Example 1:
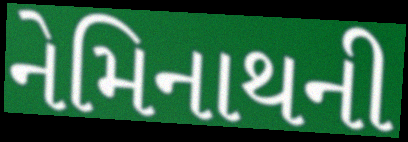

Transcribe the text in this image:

નેમિનાથની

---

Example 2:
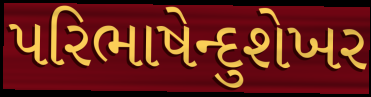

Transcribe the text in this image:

પરિભાષેન્દુશેખર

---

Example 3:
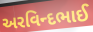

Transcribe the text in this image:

અરવિન્દભાઈ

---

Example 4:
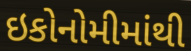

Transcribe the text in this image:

ઇકોનોમીમાંથી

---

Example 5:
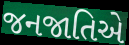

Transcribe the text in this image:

જનજાતિએ